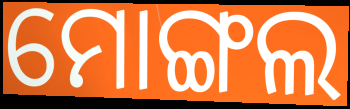
ମୋଙ୍ଗଲ